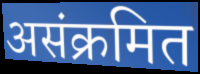
असंक्रमित